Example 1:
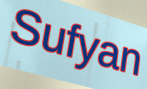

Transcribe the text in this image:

Sufyan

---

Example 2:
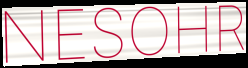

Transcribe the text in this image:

NESOHR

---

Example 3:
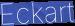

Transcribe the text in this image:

Eckart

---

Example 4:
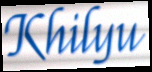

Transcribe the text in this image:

Khilyu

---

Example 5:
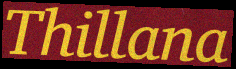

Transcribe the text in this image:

Thillana